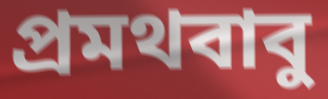
প্রমথবাবু